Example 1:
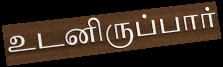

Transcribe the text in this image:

உடனிருப்பார்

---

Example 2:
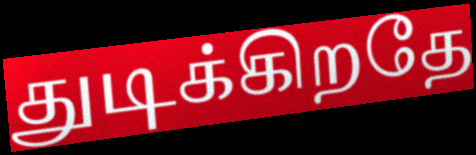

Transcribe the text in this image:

துடிக்கிறதே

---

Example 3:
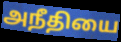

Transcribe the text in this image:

அநீதியை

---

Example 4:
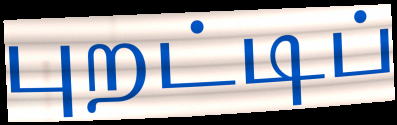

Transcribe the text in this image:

புறட்டிப்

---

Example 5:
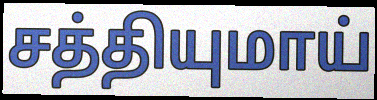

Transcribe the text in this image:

சத்தியுமாய்